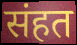
संहत